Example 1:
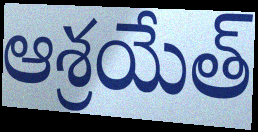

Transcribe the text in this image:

ఆశ్రయేత్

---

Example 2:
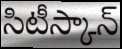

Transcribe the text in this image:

సిటీస్కాన్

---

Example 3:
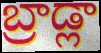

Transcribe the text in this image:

బ్రాడ్లా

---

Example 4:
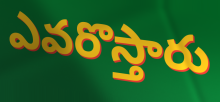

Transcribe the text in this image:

ఎవరొస్తారు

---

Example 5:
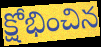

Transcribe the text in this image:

క్షోభించిన